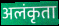
अलंकृता